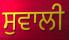
ਸੁਵਾਲੀ